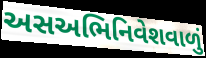
અસઅભિનિવેશવાળું